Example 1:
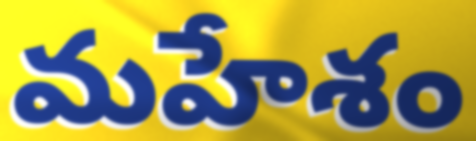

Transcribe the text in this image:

మహేశం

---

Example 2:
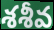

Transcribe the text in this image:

శశీవ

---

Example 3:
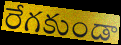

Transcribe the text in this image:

రేగకుండా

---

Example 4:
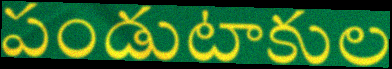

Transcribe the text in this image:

పండుటాకుల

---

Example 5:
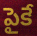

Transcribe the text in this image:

పైకే